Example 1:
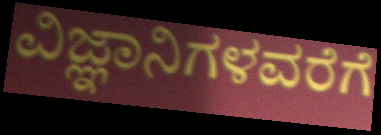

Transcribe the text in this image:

ವಿಜ್ಞಾನಿಗಳವರೆಗೆ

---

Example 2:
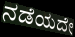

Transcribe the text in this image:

ನಡೆಯದೇ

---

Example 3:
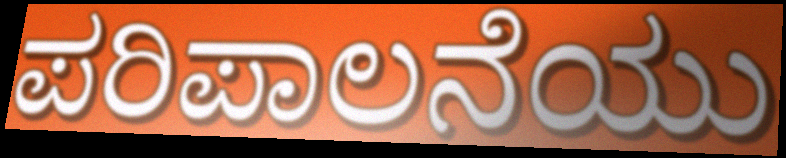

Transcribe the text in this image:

ಪರಿಪಾಲನೆಯು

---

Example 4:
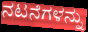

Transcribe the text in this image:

ನಟನೆಗಳನ್ನು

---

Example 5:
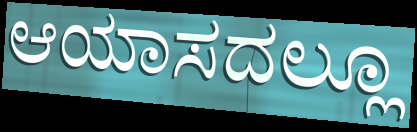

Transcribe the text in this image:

ಆಯಾಸದಲ್ಲೂ